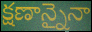
క్షణాన్నైనా